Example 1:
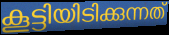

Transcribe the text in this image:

കൂട്ടിയിടിക്കുന്നത്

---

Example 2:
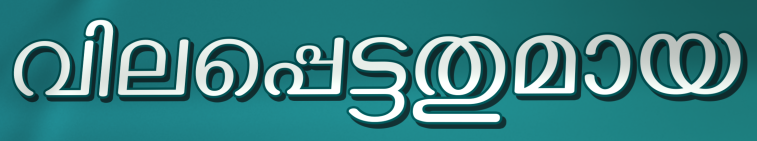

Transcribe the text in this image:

വിലപ്പെട്ടതുമായ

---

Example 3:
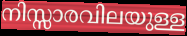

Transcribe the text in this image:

നിസ്സാരവിലയുള്ള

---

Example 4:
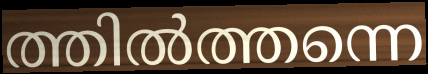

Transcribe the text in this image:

ത്തിൽത്തന്നെ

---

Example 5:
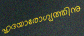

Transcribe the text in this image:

ഹൃദയാരോഗ്യത്തിനു